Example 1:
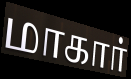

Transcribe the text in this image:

மாகார்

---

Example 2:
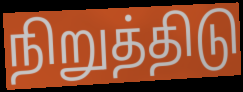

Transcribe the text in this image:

நிறுத்திடு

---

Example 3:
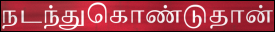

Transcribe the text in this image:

நடந்துகொண்டுதான்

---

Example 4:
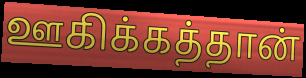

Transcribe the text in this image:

ஊகிக்கத்தான்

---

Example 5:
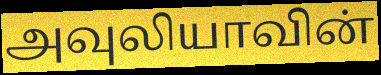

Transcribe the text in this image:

அவுலியாவின்